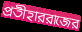
প্রতীহাররাজের